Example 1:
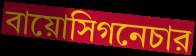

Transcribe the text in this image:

বায়োসিগনেচার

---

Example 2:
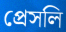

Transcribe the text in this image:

প্রেসলি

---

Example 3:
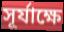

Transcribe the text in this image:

সূর্যাক্ষে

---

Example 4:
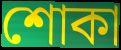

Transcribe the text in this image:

শোকা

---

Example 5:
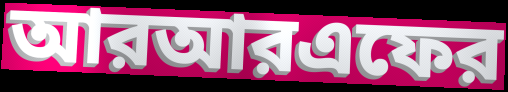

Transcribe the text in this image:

আরআরএফের